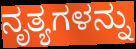
ನೃತ್ಯಗಳನ್ನು